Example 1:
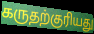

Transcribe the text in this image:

கருதற்குரியது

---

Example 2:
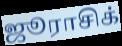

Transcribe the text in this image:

ஜூராசிக்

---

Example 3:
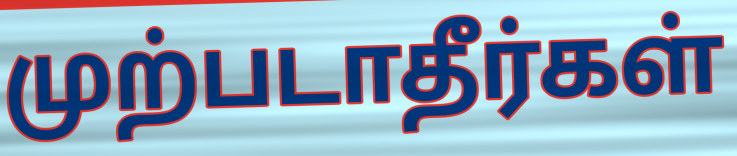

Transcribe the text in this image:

முற்படாதீர்கள்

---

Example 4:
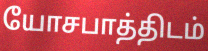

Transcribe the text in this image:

யோசபாத்திடம்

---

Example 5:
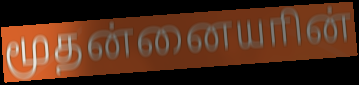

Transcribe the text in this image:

மூதன்னையரின்